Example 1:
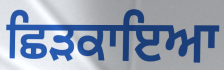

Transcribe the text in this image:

ਛਿੜਕਾਇਆ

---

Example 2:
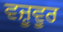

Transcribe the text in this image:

ਵਜ਼ੂਵੂਰ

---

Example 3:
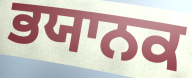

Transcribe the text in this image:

ਭਯਾਨਕ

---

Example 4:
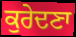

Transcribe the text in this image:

ਕੁਰੇਦਣਾ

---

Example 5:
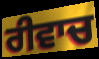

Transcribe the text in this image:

ਰੀਵਾਚ